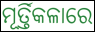
ମୂର୍ତ୍ତିକଳାରେ